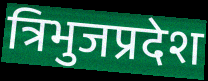
त्रिभुजप्रदेश